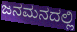
ಜನಮನದಲ್ಲಿ